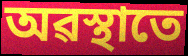
অৱস্থাতে